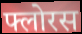
फ्लोरस